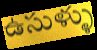
ఉసుళ్ళు